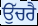
ਉੱਚਰੈ